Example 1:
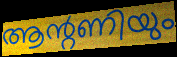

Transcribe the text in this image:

ആന്റണിയും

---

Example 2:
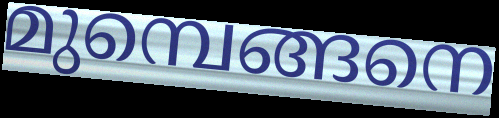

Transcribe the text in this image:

മുമ്പെങ്ങനെ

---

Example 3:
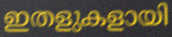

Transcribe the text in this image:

ഇതളുകളായി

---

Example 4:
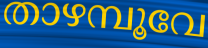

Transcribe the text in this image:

താഴമ്പൂവേ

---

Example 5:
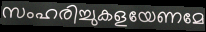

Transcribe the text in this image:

സംഹരിച്ചുകളയേണമേ